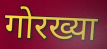
गोरख्या